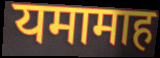
यमामाह